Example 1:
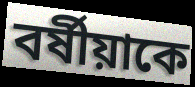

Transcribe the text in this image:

বর্ষীয়াকে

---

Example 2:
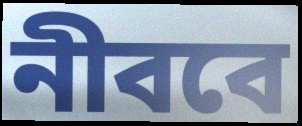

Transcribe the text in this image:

নীববে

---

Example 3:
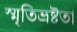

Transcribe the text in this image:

স্মৃতিভ্রষ্টতা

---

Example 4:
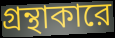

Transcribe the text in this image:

গ্রন্থাকারে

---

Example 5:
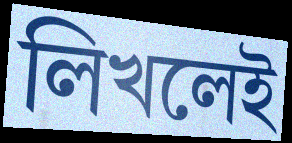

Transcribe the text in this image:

লিখলেই